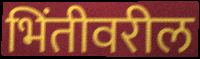
भिंतीवरील